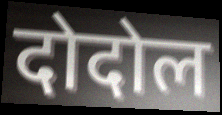
दोदोल